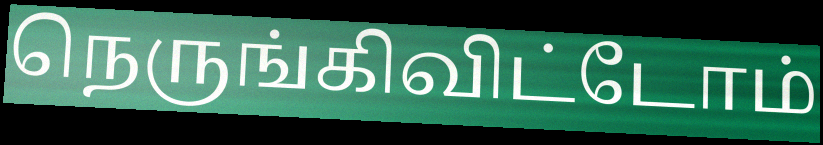
நெருங்கிவிட்டோம்